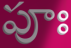
పూః